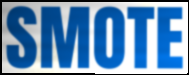
SMOTE